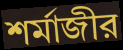
শর্মাজীর